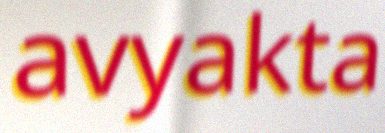
avyakta